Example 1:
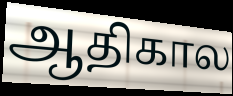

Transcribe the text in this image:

ஆதிகால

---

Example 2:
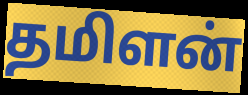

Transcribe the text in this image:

தமிளன்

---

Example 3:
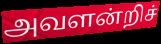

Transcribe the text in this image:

அவளன்றிச்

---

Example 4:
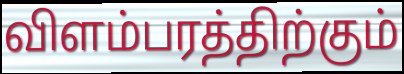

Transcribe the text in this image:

விளம்பரத்திற்கும்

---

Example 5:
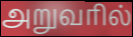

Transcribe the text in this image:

அறுவரில்